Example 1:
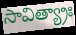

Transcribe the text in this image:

సావిత్య్రాః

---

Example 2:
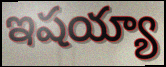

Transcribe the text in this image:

ఇషయ్యా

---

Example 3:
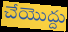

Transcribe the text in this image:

చేయొద్దు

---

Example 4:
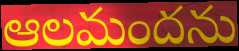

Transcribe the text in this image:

ఆలమందను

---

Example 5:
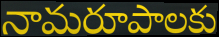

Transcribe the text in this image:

నామరూపాలకు